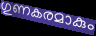
ഗുണകരമാകും